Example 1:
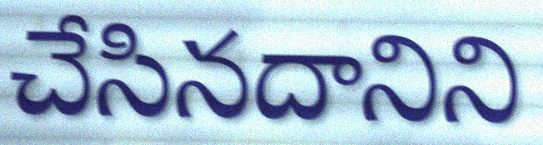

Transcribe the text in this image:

చేసినదానిని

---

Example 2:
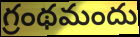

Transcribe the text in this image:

గ్రంథమందు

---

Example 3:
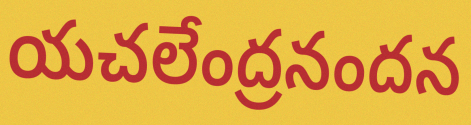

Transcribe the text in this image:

యచలేంద్రనందన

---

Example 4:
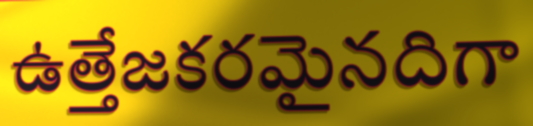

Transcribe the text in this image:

ఉత్తేజకరమైనదిగా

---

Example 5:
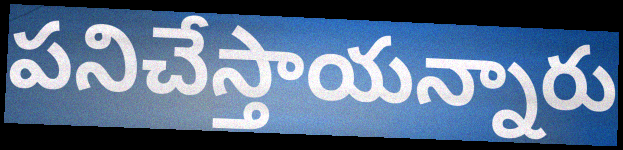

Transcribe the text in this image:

పనిచేస్తాయన్నారు